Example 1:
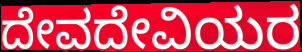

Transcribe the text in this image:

ದೇವದೇವಿಯರ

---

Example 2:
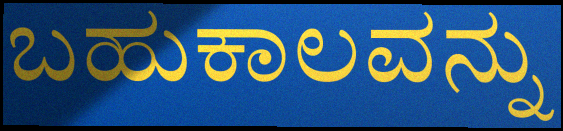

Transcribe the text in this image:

ಬಹುಕಾಲವನ್ನು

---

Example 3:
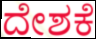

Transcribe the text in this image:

ದೇಶಕೆ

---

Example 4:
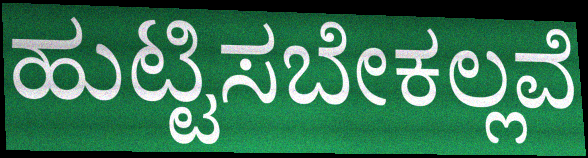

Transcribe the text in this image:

ಹುಟ್ಟಿಸಬೇಕಲ್ಲವೆ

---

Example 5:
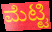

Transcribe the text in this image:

ಮೆಟ್ಟಿ